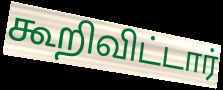
கூறிவிட்டார்